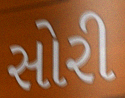
સોરી